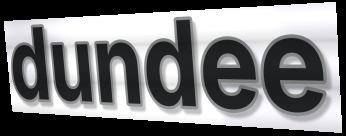
dundee